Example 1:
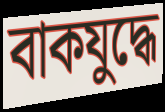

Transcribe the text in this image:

বাকযুদ্ধে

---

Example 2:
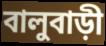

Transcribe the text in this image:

বালুবাড়ী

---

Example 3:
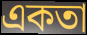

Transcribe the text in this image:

একতা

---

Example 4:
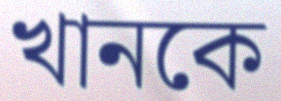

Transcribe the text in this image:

খানকে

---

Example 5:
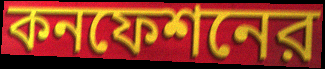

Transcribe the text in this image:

কনফেশনের